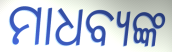
ମାଧବ୍ୟଙ୍କ